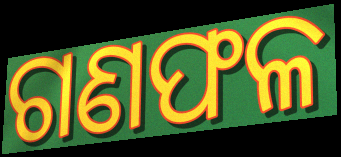
ଗଣଫଳ